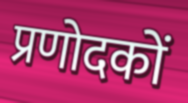
प्रणोदकों